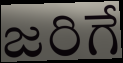
జరిగే